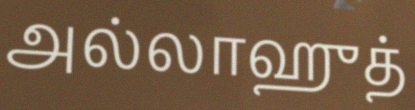
அல்லாஹுத்